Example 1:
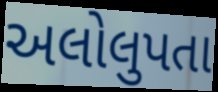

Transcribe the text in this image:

અલોલુપતા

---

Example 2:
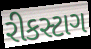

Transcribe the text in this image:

રીકસ્ટાગ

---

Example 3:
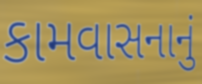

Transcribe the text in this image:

કામવાસનાનું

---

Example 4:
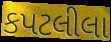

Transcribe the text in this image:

કપટલીલા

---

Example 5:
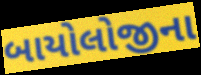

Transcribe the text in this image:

બાયોલોજીના